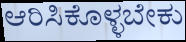
ಆರಿಸಿಕೊಳ್ಳಬೇಕು